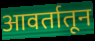
आवर्तातून